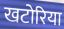
खटोरिया